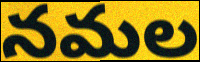
నమల